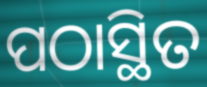
ପଠାସ୍ଥିତ